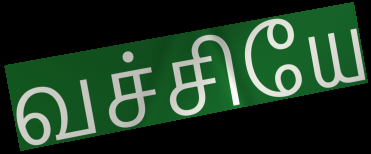
வச்சியே